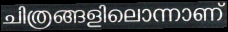
ചിത്രങ്ങളിലൊന്നാണ്